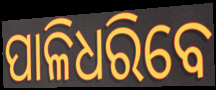
ପାଳିଧରିବେ